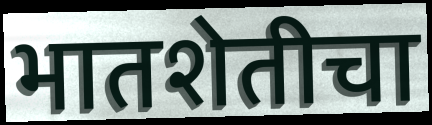
भातशेतीचा